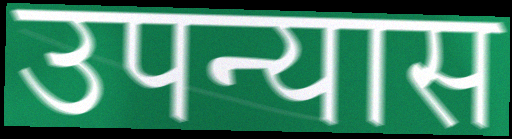
उपन्यास